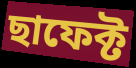
ছাফেক্ট